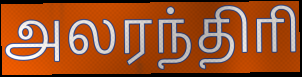
அலரந்திரி